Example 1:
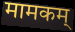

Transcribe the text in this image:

मामकम्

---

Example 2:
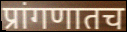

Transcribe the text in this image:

प्रांगणातच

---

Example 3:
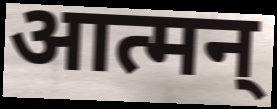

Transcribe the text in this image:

आत्मन्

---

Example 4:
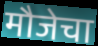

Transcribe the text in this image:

मौजेचा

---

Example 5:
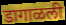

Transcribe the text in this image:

डागाळली